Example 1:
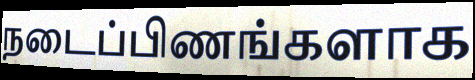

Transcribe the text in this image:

நடைப்பிணங்களாக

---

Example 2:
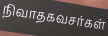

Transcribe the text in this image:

நிவாதகவசர்கள்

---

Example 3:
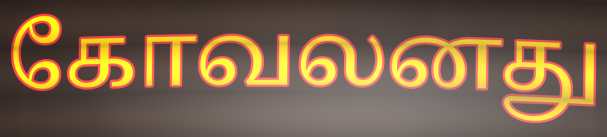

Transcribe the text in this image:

கோவலனது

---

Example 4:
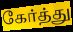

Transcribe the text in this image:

கேர்த்து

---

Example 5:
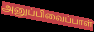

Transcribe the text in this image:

அனுப்பிவைப்பாள்